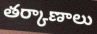
తర్కాణాలు